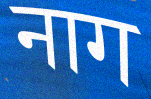
नाग